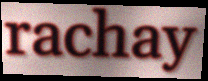
rachay